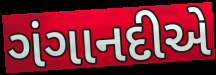
ગંગાનદીએ